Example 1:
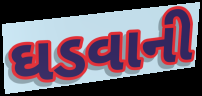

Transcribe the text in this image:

ઘડવાની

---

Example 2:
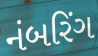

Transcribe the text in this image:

નંબરિંગ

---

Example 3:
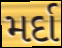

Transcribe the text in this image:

મર્દા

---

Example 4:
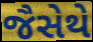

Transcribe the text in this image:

જૈસેથે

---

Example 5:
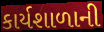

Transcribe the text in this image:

કાર્યશાળાની